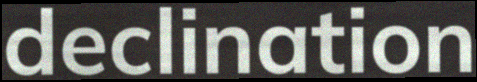
declination